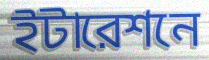
ইটারেশনে